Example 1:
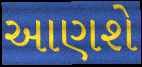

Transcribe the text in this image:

આણશે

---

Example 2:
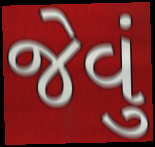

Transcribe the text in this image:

જેવું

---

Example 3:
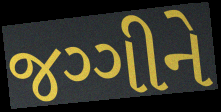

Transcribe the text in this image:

જગ્ગીને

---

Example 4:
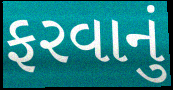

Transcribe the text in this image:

ફરવાનું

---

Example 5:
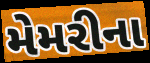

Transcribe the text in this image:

મેમરીના